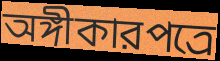
অঙ্গীকারপত্রে